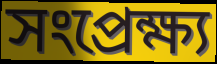
সংপ্রেক্ষ্য